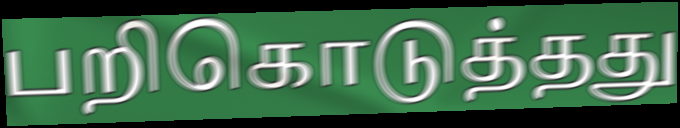
பறிகொடுத்தது